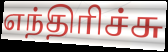
எந்திரிச்சு